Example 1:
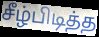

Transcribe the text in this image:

சீழ்பிடித்த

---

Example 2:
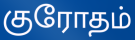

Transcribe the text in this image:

குரோதம்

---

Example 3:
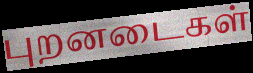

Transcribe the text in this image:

புறனடைகள்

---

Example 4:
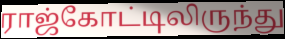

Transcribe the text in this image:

ராஜ்கோட்டிலிருந்து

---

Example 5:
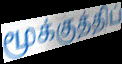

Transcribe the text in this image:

மூக்குத்திப்